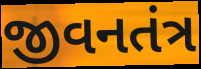
જીવનતંત્ર